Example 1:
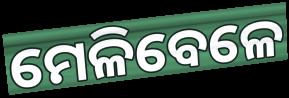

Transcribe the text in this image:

ମେଳିବେଳେ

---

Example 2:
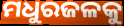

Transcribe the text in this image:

ମଧୁରଜଳକୁ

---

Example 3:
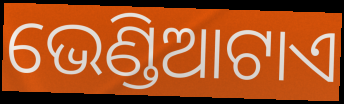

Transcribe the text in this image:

ଭେଣ୍ଡିଆଟାଏ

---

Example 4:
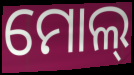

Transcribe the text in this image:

ମୋଲ୍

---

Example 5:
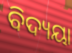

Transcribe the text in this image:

ବିଦ୍ୟୟା